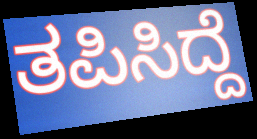
ತಪಿಸಿದ್ದೆ